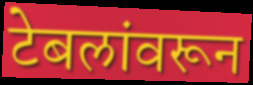
टेबलांवरून